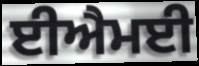
ਈਐਮਈ